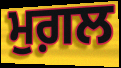
ਮੁਗ਼ਲ